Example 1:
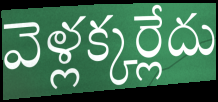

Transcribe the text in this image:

వెళ్లక్కర్లేదు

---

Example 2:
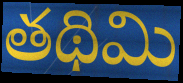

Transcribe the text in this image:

తథిమి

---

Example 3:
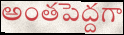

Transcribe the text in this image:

అంతపెద్దగా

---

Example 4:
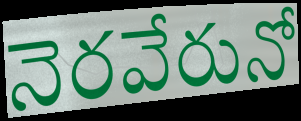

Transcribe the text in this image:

నెరవేరునో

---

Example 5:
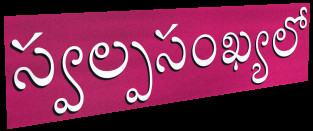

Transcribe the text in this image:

స్వల్పసంఖ్యలో